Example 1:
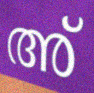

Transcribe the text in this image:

അ്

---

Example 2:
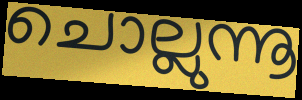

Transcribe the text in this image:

ചൊല്ലുന്നൂ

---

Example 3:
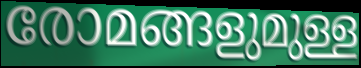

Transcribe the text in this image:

രോമങ്ങളുമുള്ള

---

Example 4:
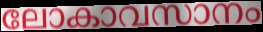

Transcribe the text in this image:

ലോകാവസാനം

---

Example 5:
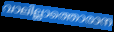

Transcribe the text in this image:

വാലില്ലാത്തൊരാന